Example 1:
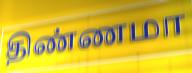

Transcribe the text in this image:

திண்ணமா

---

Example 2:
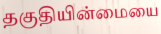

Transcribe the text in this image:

தகுதியின்மையை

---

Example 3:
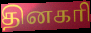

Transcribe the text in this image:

தினகரி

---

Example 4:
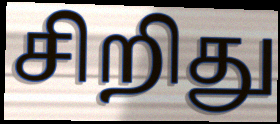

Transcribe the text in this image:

சிறிது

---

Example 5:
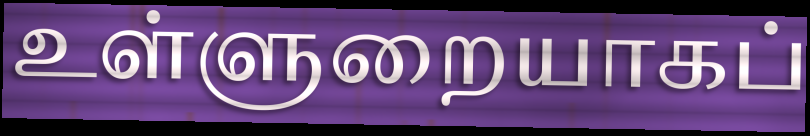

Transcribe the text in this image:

உள்ளுறையாகப்